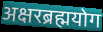
अक्षरब्रह्मयोग